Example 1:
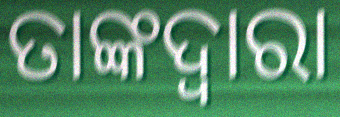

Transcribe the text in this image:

ତାଙ୍କଦ୍ଵାରା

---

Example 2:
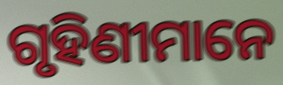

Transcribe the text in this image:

ଗୃହିଣୀମାନେ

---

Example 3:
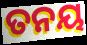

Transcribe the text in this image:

ତନୟ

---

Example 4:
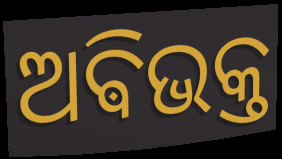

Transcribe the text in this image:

ଅଵିଭକ୍ତ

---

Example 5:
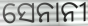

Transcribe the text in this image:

ସେନାନୀ